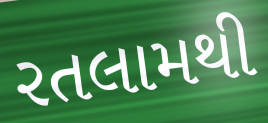
રતલામથી